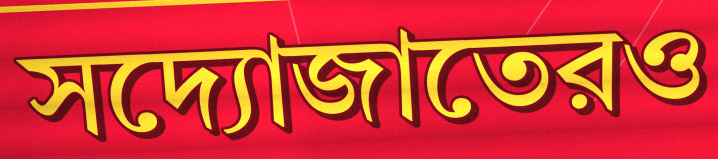
সদ্যোজাতেরও